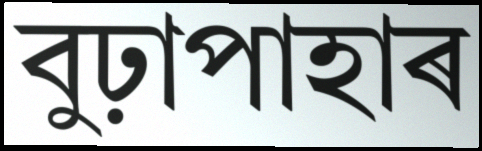
বুঢ়াপাহাৰ